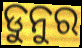
ଡୁନୁର